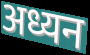
अध्यन